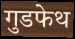
गुडफेथ